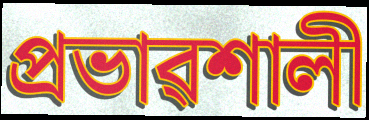
প্ৰভাৱশালী